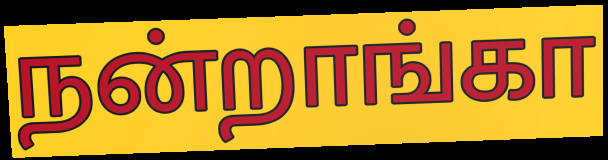
நன்றாங்கா